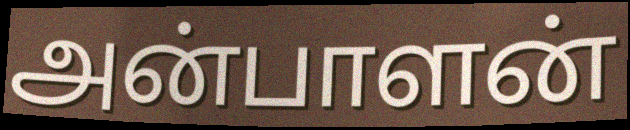
அன்பாளன்